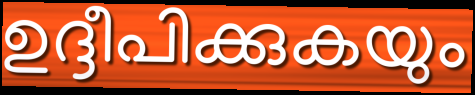
ഉദ്ദീപിക്കുകയും